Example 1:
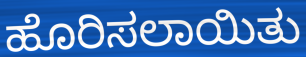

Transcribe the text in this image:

ಹೊರಿಸಲಾಯಿತು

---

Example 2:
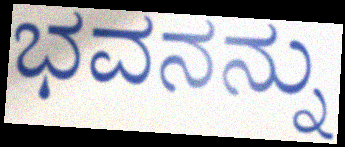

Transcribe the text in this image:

ಭವನನ್ನು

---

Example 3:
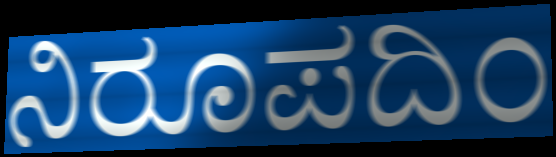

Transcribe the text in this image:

ನಿರೂಪದಿಂ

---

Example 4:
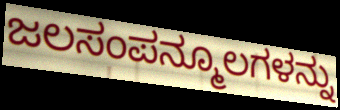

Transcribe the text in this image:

ಜಲಸಂಪನ್ಮೂಲಗಳನ್ನು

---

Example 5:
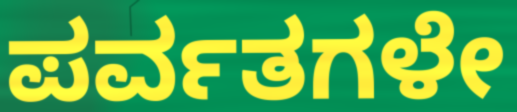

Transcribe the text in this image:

ಪರ್ವತಗಳೇ